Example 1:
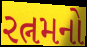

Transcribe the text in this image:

રત્નમનો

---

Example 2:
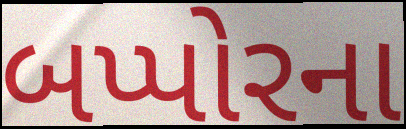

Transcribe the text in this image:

બપ્પોરના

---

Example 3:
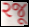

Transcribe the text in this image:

રજૂ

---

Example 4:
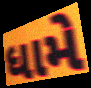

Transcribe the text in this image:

ધામે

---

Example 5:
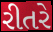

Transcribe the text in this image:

રીતરે